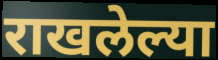
राखलेल्या